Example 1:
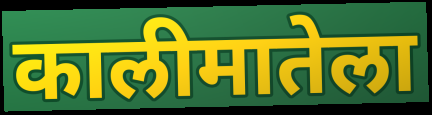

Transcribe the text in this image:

कालीमातेला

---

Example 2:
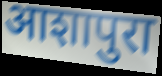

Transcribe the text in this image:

आशापुरा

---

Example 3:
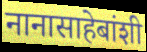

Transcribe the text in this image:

नानासाहेबांशी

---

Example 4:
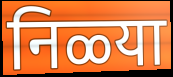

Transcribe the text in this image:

निळ्या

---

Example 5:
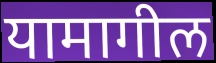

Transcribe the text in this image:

यामागील